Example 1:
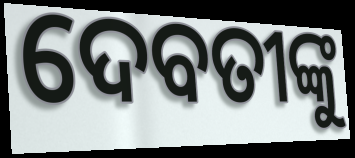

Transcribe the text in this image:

ଦେବତୀଙ୍କୁ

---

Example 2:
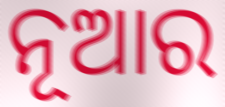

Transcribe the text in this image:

ନୂଆର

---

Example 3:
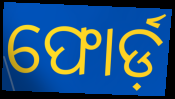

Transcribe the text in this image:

ଫୋର୍ଡ଼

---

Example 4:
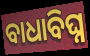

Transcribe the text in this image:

ବାଧାବିଘ୍ନ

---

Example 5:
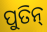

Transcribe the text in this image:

ପୁତିନ୍